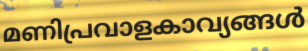
മണിപ്രവാളകാവ്യങ്ങൾ